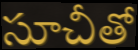
సూచీతో